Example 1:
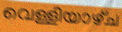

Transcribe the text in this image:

വെള്ളിയാഴ്‌ച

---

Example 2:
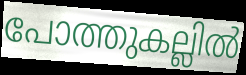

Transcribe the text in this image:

പോത്തുകല്ലിൽ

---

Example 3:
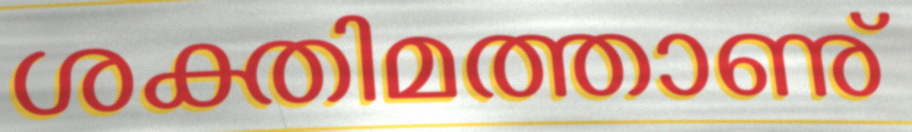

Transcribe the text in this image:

ശക്തിമത്താണു്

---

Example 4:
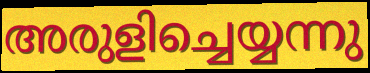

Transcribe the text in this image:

അരുളിച്ചെയ്യന്നു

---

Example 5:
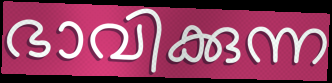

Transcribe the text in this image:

ഭാവിക്കുന്ന